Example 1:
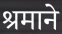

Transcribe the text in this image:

श्रमाने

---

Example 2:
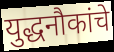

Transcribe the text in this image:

युद्धनौकांचे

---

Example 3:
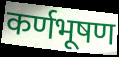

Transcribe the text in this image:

कर्णभूषण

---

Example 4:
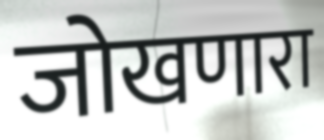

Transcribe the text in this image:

जोखणारा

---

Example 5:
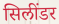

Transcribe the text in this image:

सिलींडर